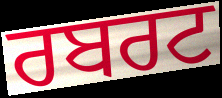
ਰਬਰਟ